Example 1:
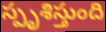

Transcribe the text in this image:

స్పృశిస్తుంది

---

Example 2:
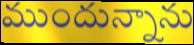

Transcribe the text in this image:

ముందున్నాను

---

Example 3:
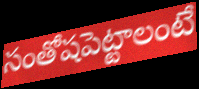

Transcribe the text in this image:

సంతోషపెట్టాలంటే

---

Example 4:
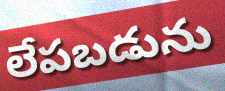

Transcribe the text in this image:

లేపబడును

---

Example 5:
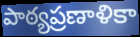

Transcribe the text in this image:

పాఠ్యప్రణాళికా